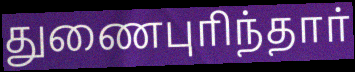
துணைபுரிந்தார்